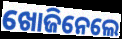
ଖୋଜିନେଲେ